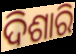
ଦିଶାରି